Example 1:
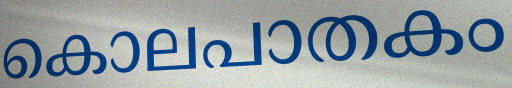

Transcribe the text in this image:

കൊലപാതകം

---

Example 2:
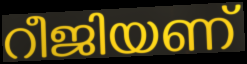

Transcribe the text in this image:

റീജിയണ്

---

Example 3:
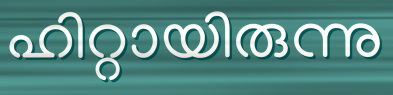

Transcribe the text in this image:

ഹിറ്റായിരുന്നു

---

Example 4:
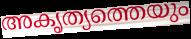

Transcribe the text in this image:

അകൃത്യത്തെയും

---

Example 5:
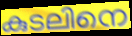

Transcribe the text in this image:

കുടലിനെ